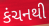
કંચનથી